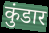
कुंडार